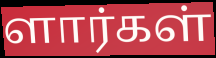
ளார்கள்